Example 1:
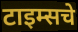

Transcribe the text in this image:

टाइम्सचे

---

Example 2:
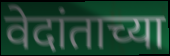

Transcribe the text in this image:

वेदांताच्या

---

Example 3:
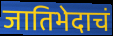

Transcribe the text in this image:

जातिभेदाचं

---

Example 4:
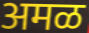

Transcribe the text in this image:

अमळ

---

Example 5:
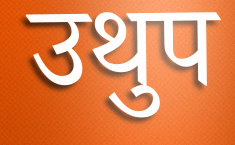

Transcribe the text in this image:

उथुप